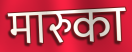
मारुका